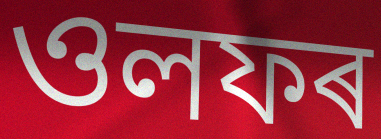
ওলফৰ